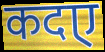
कदए